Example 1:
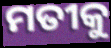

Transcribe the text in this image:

ମତୀକୁ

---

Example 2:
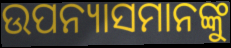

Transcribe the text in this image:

ଉପନ୍ୟାସମାନଙ୍କୁ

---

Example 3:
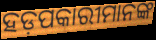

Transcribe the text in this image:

ହଡ଼ପକାରୀମାନଙ୍କ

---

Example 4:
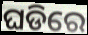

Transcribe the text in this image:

ଘଡିରେ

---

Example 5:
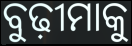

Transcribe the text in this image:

ବୁଢ଼ୀମାକୁ